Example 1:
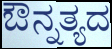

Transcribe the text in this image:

ಔನ್ನತ್ಯದ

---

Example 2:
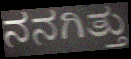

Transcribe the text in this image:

ನನಗಿತ್ತು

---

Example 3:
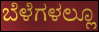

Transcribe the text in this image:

ಬೆಳೆಗಳಲ್ಲೂ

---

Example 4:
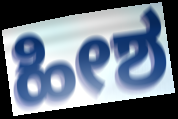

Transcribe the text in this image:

ಹೀಶ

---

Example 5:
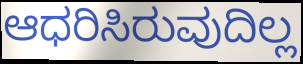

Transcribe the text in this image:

ಆಧರಿಸಿರುವುದಿಲ್ಲ